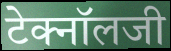
टेक्‍नॉलजी